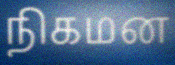
நிகமன